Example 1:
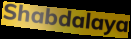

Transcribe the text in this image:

Shabdalaya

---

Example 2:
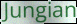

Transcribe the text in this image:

Jungian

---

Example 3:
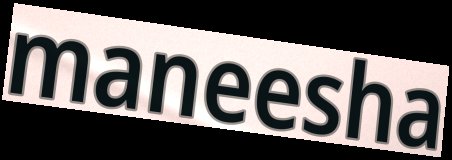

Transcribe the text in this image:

maneesha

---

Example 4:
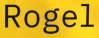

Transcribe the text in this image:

Rogel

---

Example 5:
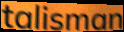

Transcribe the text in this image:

talisman